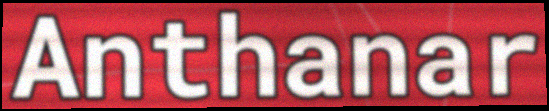
Anthanar